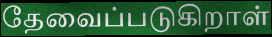
தேவைப்படுகிறாள்